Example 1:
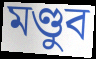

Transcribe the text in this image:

মণ্ডুব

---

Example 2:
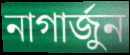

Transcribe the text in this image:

নাগাৰ্জুন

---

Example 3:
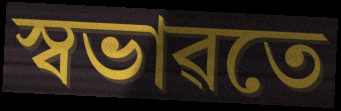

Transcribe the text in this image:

স্বভাৱতে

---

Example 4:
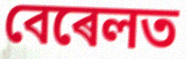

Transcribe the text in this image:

বেৰেলত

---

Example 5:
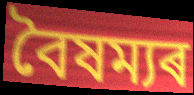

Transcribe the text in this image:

বৈষম্যৰ